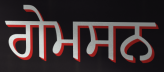
ਗੇਮਸਨ